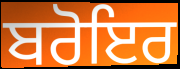
ਬਰੋਇਰ